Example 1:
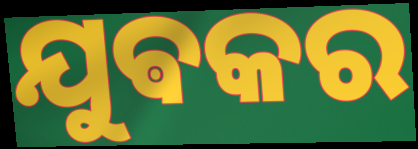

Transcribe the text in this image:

ଯୁଵକର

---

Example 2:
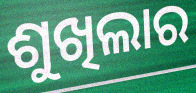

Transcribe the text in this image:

ଶୁଖିଲାର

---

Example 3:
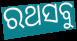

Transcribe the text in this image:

ରଥସବୁ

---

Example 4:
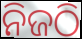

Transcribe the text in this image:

ନିଜଠି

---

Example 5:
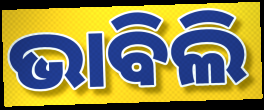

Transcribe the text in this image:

ଭାବିଲି